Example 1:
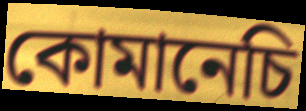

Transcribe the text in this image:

কোমানেচি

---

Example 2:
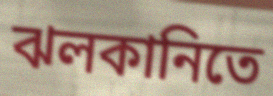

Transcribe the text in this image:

ঝলকানিতে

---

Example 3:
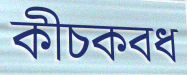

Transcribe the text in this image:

কীচকবধ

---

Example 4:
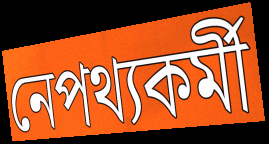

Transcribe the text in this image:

নেপথ্যকর্মী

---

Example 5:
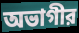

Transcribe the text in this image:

অভাগীর